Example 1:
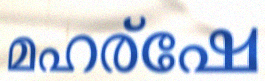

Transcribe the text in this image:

മഹര്ഷേ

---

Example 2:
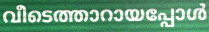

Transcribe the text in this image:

വീടെത്താറായപ്പോൾ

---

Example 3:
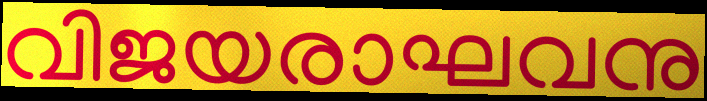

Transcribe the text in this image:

വിജയരാഘവനു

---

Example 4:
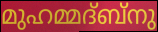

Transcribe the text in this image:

മുഹമ്മദ്ബ്നു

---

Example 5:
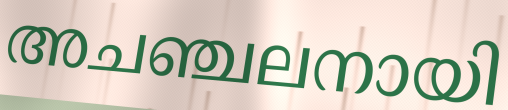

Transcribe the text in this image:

അചഞ്ചലനായി